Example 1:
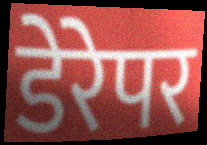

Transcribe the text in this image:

डेरेपर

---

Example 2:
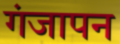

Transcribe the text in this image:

गंजापन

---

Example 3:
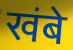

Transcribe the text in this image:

खंबे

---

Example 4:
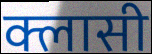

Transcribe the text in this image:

क्लासी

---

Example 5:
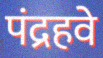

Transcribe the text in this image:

पंद्रहवे